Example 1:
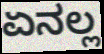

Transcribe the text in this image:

ಏನಲ್ಲ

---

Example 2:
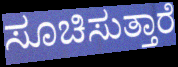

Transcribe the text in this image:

ಸೂಚಿಸುತ್ತಾರೆ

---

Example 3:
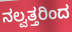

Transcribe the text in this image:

ನಲ್ವತ್ತರಿಂದ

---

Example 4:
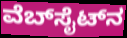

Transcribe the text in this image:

ವೆಬ್‍ಸೈಟ್‍ನ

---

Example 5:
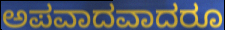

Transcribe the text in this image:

ಅಪವಾದವಾದರೂ